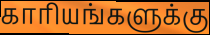
காரியங்களுக்கு